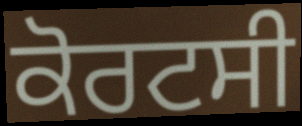
ਕੋਰਟਸੀ